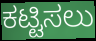
ಕಟ್ಟಿಸಲು